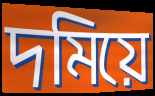
দমিয়ে